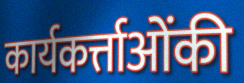
कार्यकर्त्ताओंकी